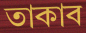
তাকাব